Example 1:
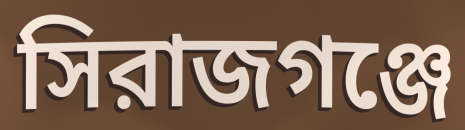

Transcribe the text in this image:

সিরাজগঞ্জে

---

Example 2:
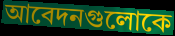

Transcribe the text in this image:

আবেদনগুলোকে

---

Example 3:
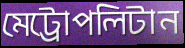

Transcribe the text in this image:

মেট্রোপলিটান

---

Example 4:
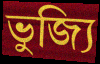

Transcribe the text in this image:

ভুজ্যি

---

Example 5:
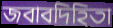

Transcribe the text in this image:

জবাবদিহিতা